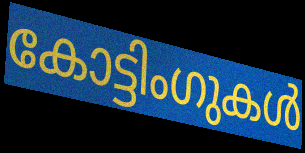
കോട്ടിംഗുകൾ